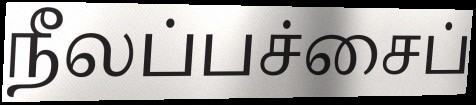
நீலப்பச்சைப்